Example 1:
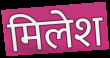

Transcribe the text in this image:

मिलेश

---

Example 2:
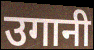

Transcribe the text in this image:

उगानी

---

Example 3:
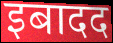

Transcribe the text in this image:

इबादद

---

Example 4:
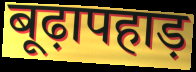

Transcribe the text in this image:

बूढ़ापहाड़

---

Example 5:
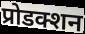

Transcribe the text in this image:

प्रोडक्शन